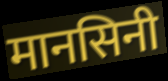
मानसिनी